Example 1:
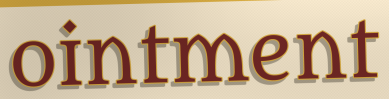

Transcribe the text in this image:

ointment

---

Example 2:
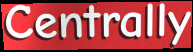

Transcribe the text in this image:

Centrally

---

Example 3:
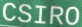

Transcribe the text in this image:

CSIRO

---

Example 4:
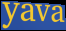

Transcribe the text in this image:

yava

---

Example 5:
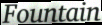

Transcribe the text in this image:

Fountain